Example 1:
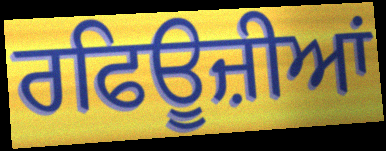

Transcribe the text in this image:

ਰਫਿਊਜ਼ੀਆਂ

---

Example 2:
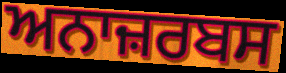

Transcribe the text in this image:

ਅਨਾਜ਼ਰਬਸ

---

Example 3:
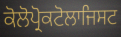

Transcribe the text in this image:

ਕੋਲੋਪ੍ਰੋਕਟੋਲਾਜਿਸਟ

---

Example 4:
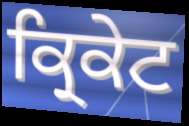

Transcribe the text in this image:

ਕ੍ਰਿਕੇਟ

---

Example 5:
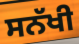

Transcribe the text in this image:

ਸਨੱਖੀ